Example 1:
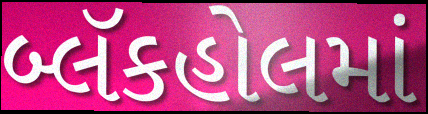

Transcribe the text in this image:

બ્લૅકહોલમાં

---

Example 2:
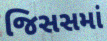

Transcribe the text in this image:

જિસસમાં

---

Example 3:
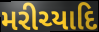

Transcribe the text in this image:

મરીચ્યાદિ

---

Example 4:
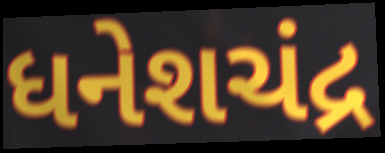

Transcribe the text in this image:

ધનેશચંદ્ર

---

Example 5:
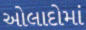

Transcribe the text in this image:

ઓલાદોમાં